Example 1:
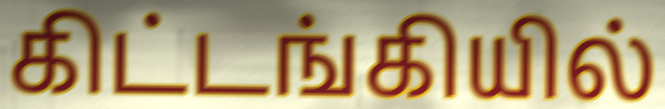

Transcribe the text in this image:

கிட்டங்கியில்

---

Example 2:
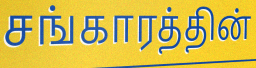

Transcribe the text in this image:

சங்காரத்தின்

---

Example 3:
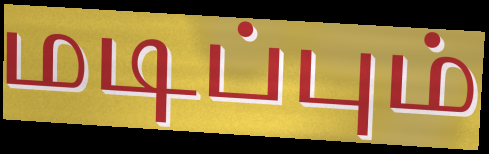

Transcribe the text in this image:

மடிப்பும்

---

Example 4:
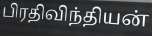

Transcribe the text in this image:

பிரதிவிந்தியன்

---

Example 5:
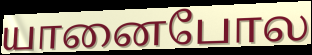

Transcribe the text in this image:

யானைபோல